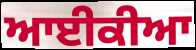
ਆਈਕੀਆ